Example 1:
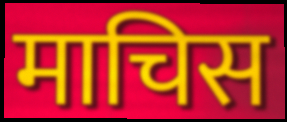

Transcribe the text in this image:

माचिस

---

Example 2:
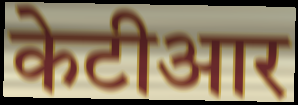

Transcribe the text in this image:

केटीआर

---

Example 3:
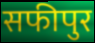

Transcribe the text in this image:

सफीपुर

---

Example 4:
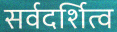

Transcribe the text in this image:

सर्वदर्शित्व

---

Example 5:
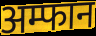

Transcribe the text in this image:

अम्‍फान